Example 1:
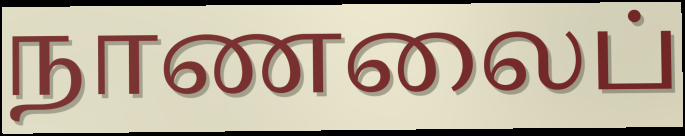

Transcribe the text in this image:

நாணலைப்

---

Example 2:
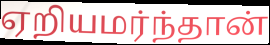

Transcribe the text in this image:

ஏறியமர்ந்தான்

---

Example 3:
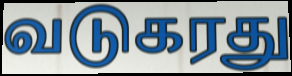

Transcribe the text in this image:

வடுகரது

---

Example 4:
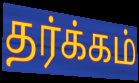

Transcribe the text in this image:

தர்க்கம்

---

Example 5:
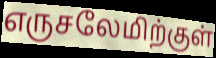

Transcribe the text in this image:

எருசலேமிற்குள்